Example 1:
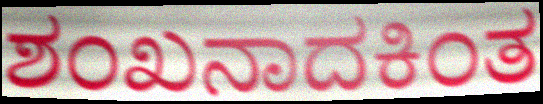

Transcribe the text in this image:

ಶಂಖನಾದಕಿಂತ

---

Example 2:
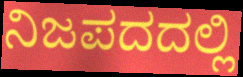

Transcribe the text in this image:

ನಿಜಪದದಲ್ಲಿ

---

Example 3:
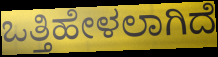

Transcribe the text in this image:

ಒತ್ತಿಹೇಳಲಾಗಿದೆ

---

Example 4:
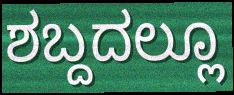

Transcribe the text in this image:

ಶಬ್ದದಲ್ಲೂ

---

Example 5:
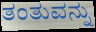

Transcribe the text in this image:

ತಂತುವನ್ನು